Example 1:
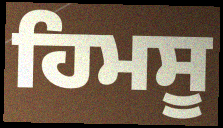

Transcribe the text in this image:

ਹਿਮਸੂ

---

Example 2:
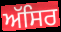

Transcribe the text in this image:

ਅੱਸਿਰ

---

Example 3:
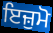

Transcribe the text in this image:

ਇਜ਼ੁਮੋ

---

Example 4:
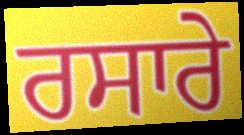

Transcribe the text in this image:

ਰਸਾਰੇ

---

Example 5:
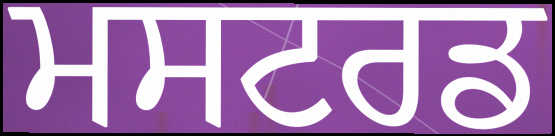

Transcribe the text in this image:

ਮਸਟਰਡ